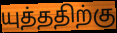
யுத்ததிற்கு